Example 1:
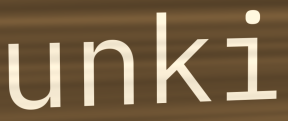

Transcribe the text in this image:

unki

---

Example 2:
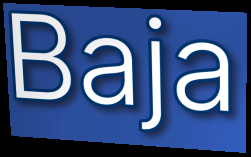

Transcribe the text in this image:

Baja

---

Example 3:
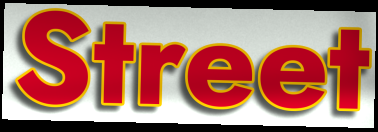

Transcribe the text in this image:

Street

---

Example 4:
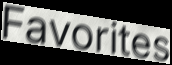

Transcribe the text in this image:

Favorites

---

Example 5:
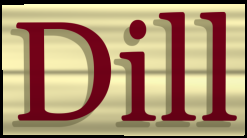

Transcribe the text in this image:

Dill